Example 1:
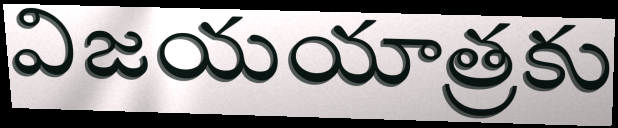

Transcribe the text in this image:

విజయయాత్రకు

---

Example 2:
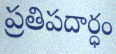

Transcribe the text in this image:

ప్రతిపదార్ధం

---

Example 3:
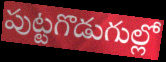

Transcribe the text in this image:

పుట్టగొడుగుల్లో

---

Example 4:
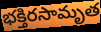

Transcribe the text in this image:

భక్తిరసామృత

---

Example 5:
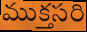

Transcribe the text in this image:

ముక్తసరి